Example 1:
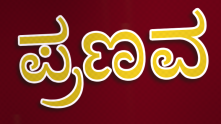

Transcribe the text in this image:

ಪ್ರಣವ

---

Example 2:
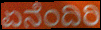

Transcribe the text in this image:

ಏನೆಂದಿರಿ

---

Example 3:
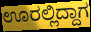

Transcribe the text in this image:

ಊರಲ್ಲಿದ್ದಾಗ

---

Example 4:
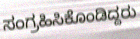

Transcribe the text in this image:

ಸಂಗ್ರಹಿಸಿಕೊಂಡಿದ್ದರು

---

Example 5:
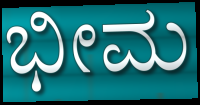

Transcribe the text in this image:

ಭೀಮ